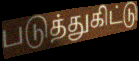
படுத்துகிட்டு